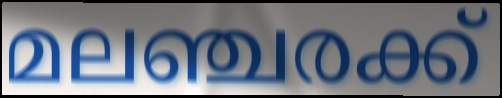
മലഞ്ചരക്ക്